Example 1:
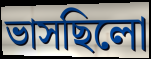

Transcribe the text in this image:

ভাসছিলো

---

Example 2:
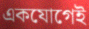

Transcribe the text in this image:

একযোগেই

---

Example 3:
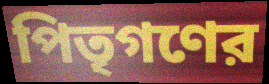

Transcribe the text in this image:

পিতৃগণের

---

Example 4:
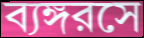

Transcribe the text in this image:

ব্যঙ্গরসে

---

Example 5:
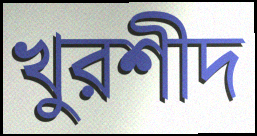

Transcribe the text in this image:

খুরশীদ